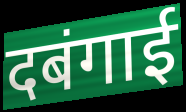
दबंगाई